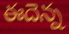
ఈదెన్న